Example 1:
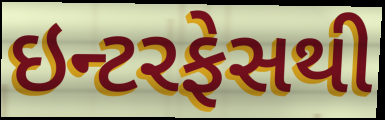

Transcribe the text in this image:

ઇન્ટરફેસથી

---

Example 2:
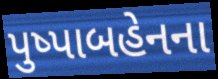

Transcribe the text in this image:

પુષ્પાબહેનના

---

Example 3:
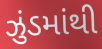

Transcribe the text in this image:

ઝુંડમાંથી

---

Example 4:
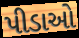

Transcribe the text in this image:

પીડાઓ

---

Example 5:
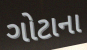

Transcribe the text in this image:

ગોટાના